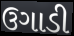
ઉગાડી